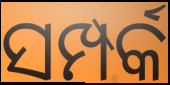
ସମ୍ପର୍କ